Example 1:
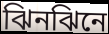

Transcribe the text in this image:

ঝিনঝিনে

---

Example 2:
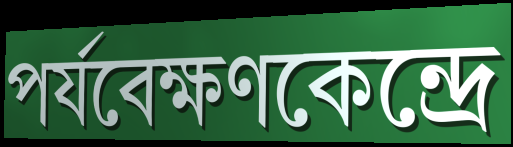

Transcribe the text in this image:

পর্যবেক্ষণকেন্দ্রে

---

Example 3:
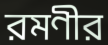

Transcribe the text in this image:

রমণীর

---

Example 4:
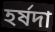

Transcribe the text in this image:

হর্ষদা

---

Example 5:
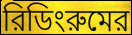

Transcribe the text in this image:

রিডিংরুমের